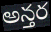
అన్తర